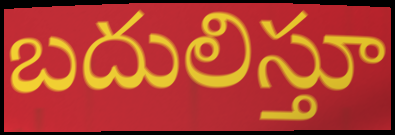
బదులిస్తూ